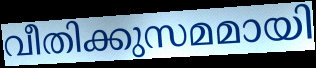
വീതിക്കുസമമായി